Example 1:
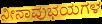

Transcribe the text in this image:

ನೀನಾವುಭಯಗಳ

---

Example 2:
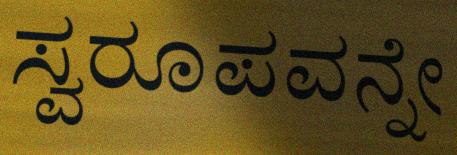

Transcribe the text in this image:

ಸ್ವರೂಪವನ್ನೇ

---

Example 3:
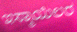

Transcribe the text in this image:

ಇಸ್ಮಾಯಿಲರ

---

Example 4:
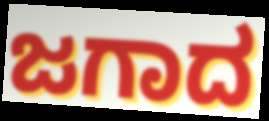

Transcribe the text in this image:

ಜಗಾದ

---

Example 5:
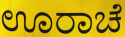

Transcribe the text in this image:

ಊರಾಚೆ